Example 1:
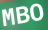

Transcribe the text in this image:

MBO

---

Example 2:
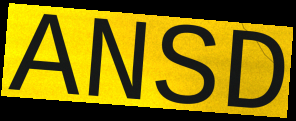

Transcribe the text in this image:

ANSD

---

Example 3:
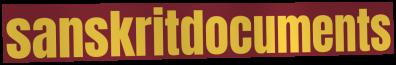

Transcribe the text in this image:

sanskritdocuments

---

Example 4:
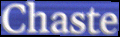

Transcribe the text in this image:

Chaste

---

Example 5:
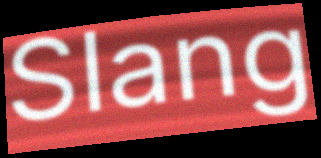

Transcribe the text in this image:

Slang